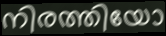
നിരത്തിയോ